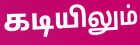
கடியிலும்